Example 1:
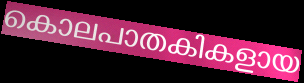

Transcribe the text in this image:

കൊലപാതകികളായ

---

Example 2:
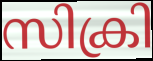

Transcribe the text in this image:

സിക്രി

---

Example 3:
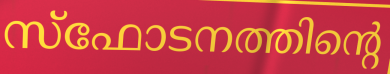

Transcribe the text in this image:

സ്ഫോടനത്തിന്റെ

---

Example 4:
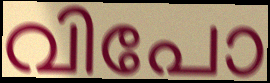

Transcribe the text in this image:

വിപോ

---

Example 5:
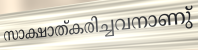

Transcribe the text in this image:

സാക്ഷാത്കരിച്ചവനാണു്